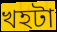
খহটা